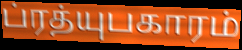
ப்ரத்யுபகாரம்